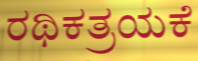
ರಥಿಕತ್ರಯಕೆ